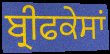
ਬ੍ਰੀਫਕੇਸਾਂ